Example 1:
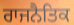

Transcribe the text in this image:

ਰਾਜਨੈਤਿਕ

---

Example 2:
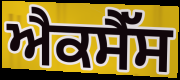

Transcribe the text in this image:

ਐਕਸੈੱਸ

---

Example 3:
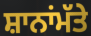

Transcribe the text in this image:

ਸ਼ਾਨਾਂਮੱਤੇ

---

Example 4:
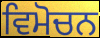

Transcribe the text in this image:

ਵਿਮੋਚਨ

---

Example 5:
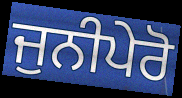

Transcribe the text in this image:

ਜੁਨੀਪੇਰੋ